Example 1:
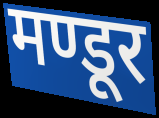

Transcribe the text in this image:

मण्डूर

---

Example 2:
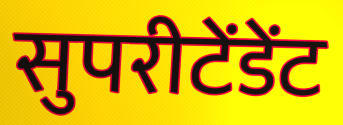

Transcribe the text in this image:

सुपरीटेंडेंट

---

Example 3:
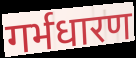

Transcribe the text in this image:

गर्भधारण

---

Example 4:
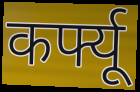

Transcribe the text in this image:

कर्फ्यू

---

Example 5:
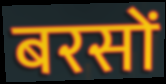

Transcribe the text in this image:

बरसों